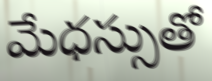
మేధస్సుతో